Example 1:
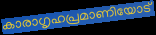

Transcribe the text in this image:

കാരാഗൃഹപ്രമാണിയോട്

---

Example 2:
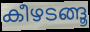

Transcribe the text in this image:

കീഴടങ്ങൂ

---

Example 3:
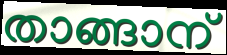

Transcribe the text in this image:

താങ്ങാന്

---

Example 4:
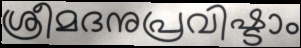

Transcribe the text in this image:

ശ്രീമദനുപ്രവിഷ്ടാം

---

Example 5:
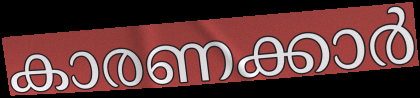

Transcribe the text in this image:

കാരണക്കാർ